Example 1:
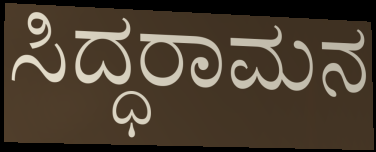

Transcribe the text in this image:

ಸಿದ್ಧರಾಮನ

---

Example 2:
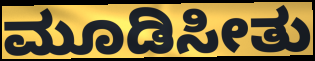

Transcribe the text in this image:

ಮೂಡಿಸೀತು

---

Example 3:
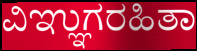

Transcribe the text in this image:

ವಿಞ್ಞುಗರಹಿತಾ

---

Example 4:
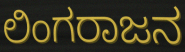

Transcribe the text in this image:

ಲಿಂಗರಾಜನ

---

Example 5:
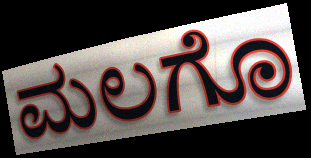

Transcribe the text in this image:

ಮಲಗೊ